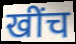
खींच